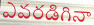
ఎవరడిగినా